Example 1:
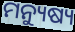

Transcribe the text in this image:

ମନ୍ୟୁଷ୍ୟ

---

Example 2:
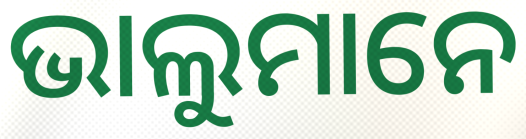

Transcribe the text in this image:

ଭାଲୁମାନେ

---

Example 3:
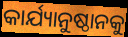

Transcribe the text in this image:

କାର୍ଯ୍ୟାନୁଷ୍ଠାନକୁ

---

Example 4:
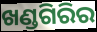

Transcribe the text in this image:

ଖଣ୍ଡଗିରିର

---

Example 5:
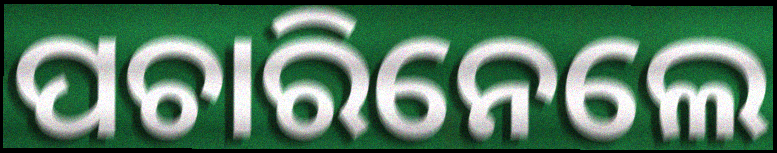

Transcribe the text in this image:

ପଚାରିନେଲେ